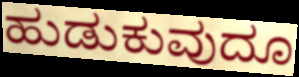
ಹುಡುಕುವುದೂ